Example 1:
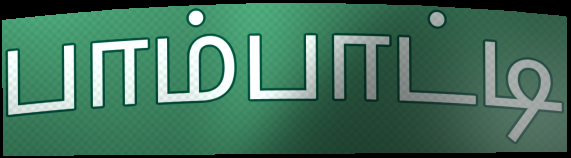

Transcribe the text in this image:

பாம்பாட்டி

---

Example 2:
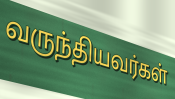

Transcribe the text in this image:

வருந்தியவர்கள்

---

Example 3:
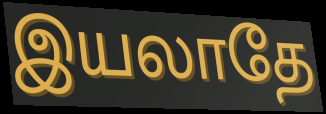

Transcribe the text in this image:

இயலாதே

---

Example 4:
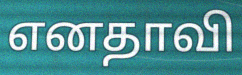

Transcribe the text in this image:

எனதாவி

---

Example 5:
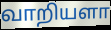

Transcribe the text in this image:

வாறியளா